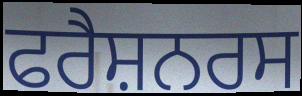
ਫਰੈਸ਼ਨਰਸ